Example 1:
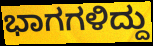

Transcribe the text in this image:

ಭಾಗಗಳಿದ್ದು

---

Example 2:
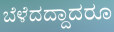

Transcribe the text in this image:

ಬೆಳೆದದ್ದಾದರೂ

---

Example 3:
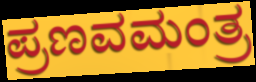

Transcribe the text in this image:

ಪ್ರಣವಮಂತ್ರ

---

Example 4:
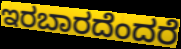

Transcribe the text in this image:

ಇರಬಾರದೆಂದರೆ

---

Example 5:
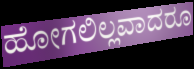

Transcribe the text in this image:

ಹೋಗಲಿಲ್ಲವಾದರೂ